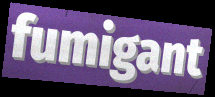
fumigant